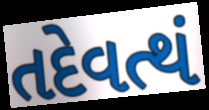
તદેવત્થં